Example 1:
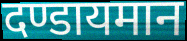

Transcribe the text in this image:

दण्डायमान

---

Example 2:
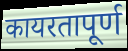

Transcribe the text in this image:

कायरतापूर्ण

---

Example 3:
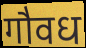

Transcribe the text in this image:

गौवध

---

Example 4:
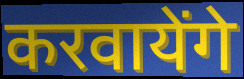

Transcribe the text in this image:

करवायेंगे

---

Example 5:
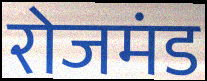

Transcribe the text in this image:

रोजमंड